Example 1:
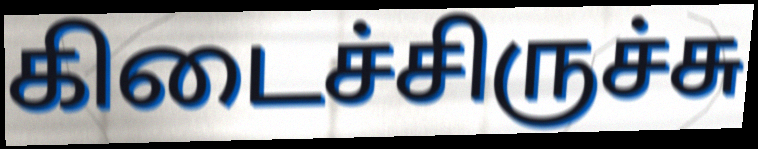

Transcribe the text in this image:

கிடைச்சிருச்சு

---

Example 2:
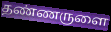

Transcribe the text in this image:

தண்ணருளை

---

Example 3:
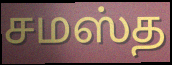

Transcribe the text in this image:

சமஸ்த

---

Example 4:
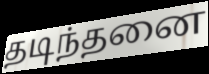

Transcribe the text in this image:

தடிந்தனை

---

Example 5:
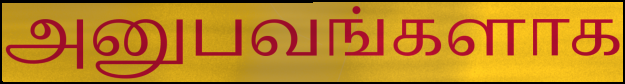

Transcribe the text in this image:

அனுபவங்களாக